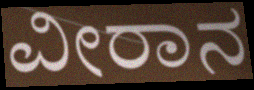
ವೀರಾನ